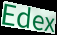
Edex